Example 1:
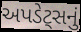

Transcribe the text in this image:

અપડેટ્સનું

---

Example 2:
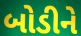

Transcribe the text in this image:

બોડીને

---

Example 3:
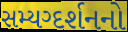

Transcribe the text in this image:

સમ્યગ્દર્શનનો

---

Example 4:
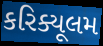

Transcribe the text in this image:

કરિક્યૂલમ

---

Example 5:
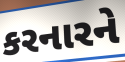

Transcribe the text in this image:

કરનારને